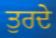
ਤੁਰਦੇ